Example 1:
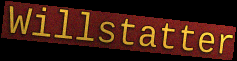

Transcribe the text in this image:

Willstatter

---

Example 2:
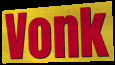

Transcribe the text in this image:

Vonk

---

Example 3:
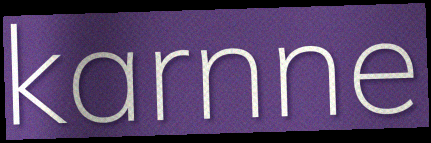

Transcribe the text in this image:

karnne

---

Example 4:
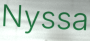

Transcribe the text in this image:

Nyssa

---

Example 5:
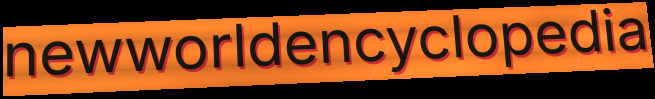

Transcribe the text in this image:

newworldencyclopedia